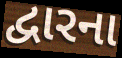
દ્વારના